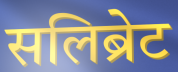
सलिब्रेट